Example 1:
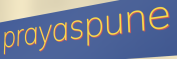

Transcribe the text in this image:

prayaspune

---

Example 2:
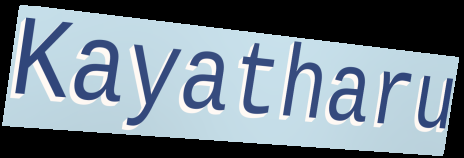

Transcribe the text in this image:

Kayatharu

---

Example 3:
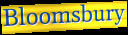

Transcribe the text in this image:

Bloomsbury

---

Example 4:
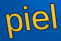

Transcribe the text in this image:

piel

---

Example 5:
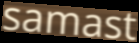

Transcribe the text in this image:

samast